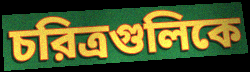
চরিত্রগুলিকে